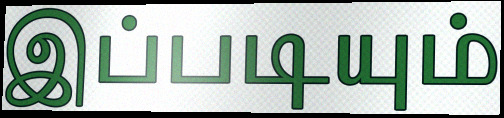
இப்படியும்